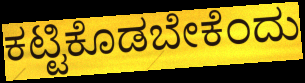
ಕಟ್ಟಿಕೊಡಬೇಕೆಂದು